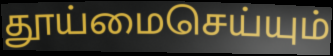
தூய்மைசெய்யும்